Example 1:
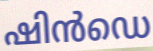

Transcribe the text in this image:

ഷിൻഡെ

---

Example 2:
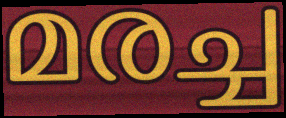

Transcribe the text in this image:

മരച്ച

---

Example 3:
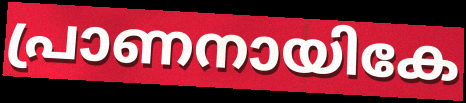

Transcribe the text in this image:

പ്രാണനായികേ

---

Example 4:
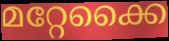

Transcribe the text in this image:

മറ്റേക്കൈ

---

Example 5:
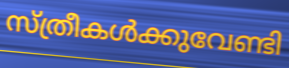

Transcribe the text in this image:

സ്ത്രീകൾക്കുവേണ്ടി